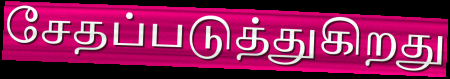
சேதப்படுத்துகிறது